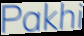
Pakhi